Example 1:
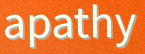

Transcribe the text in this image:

apathy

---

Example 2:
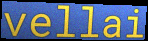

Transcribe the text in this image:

vellai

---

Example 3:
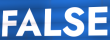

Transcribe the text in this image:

FALSE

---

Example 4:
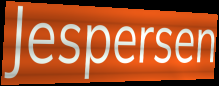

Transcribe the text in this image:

Jespersen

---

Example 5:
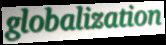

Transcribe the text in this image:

globalization